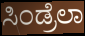
ಸಿಂಡ್ರೆಲಾ